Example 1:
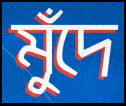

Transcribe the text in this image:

মুঁদে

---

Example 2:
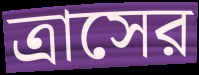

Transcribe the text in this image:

ত্রাসের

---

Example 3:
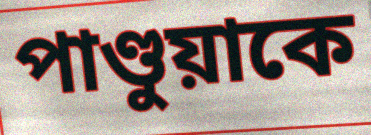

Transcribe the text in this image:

পাণ্ডুয়াকে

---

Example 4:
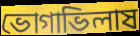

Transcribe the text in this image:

ভোগাভিলাষ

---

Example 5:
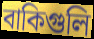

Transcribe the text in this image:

বাকিগুলি